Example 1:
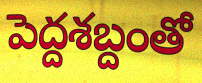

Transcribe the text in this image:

పెద్దశబ్దంతో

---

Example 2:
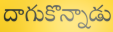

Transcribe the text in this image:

దాగుకొన్నాడు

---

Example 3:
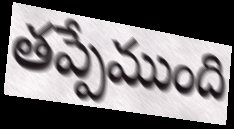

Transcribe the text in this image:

తప్పేముంది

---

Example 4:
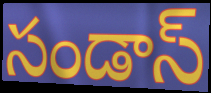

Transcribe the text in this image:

సండాస్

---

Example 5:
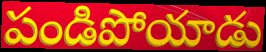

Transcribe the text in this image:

పండిపోయాడు